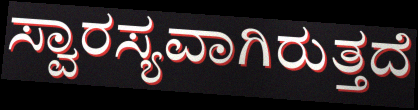
ಸ್ವಾರಸ್ಯವಾಗಿರುತ್ತದೆ